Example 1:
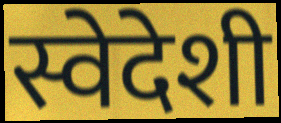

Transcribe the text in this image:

स्वेदेशी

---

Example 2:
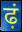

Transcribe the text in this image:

ढ़ं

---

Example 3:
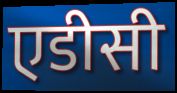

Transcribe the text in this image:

एडीसी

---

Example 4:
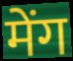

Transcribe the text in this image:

मेंग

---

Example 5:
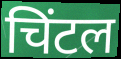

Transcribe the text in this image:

चिंटल